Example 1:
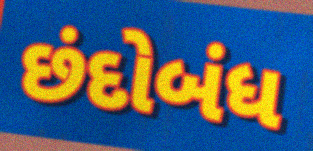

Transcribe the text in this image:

છંદોબંધ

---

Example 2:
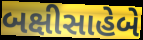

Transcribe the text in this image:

બક્ષીસાહેબે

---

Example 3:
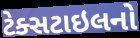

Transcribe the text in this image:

ટેક્સટાઇલનો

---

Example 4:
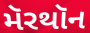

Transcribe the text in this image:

મૅરથૉન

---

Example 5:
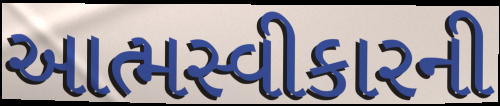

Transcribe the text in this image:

આત્મસ્વીકારની